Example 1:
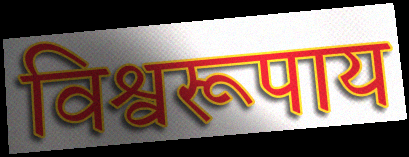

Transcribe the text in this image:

विश्वरूपाय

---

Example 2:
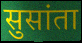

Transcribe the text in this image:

सुसांता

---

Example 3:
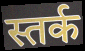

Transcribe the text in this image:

स्तर्क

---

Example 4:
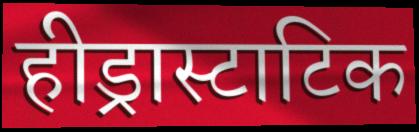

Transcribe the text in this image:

हीड्रास्टाटिक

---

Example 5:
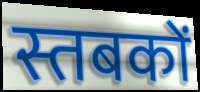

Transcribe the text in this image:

स्तबकों